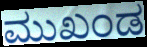
ಮುಖಂಡ